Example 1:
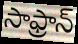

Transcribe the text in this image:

సాఫ్రాన్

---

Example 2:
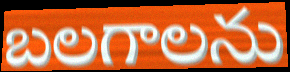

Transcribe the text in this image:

బలగాలను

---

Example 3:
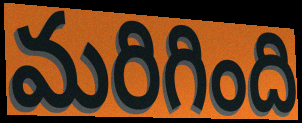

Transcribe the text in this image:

మరిగింది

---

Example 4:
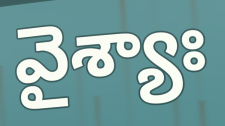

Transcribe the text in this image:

వైశ్యాః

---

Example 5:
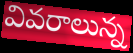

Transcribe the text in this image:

వివరాలున్న